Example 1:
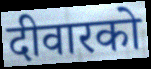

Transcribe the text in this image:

दीवारको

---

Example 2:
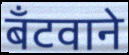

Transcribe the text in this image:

बँटवाने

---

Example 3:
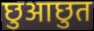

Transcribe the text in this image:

छुआछुत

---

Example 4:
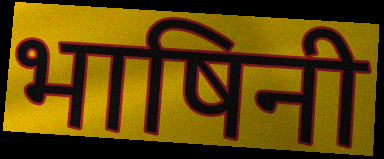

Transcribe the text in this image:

भाषिनी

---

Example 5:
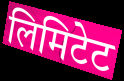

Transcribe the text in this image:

लिमिटेट